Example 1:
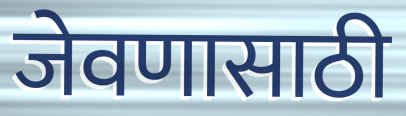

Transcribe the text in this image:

जेवणासाठी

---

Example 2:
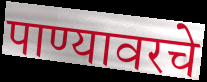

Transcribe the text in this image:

पाण्यावरचे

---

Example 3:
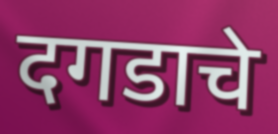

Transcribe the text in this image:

दगडाचे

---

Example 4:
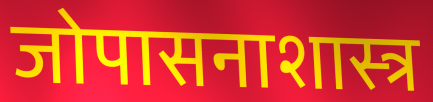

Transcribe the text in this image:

जोपासनाशास्त्र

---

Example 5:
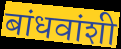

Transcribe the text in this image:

बांधवांशी